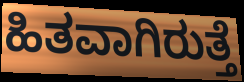
ಹಿತವಾಗಿರುತ್ತೆ